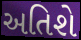
અતિશે